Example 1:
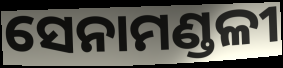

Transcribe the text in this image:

ସେନାମଣ୍ଡଳୀ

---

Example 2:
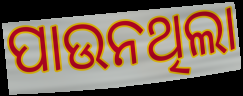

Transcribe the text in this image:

ପାଉନଥିଲା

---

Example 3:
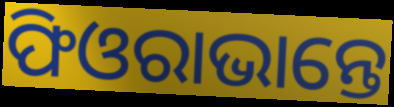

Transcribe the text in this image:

ଫିଓରାଭାନ୍ତେ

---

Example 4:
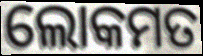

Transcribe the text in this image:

ଲୋକମତ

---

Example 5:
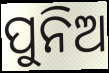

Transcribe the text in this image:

ପୁନିଅ